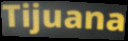
Tijuana